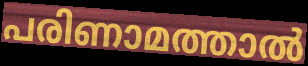
പരിണാമത്താൽ